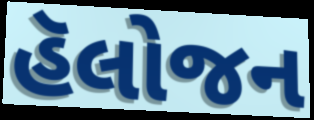
હૅલોજન